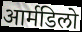
आर्मडिलो